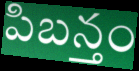
పిబన్తం